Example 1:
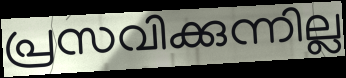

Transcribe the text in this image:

പ്രസവിക്കുന്നില്ല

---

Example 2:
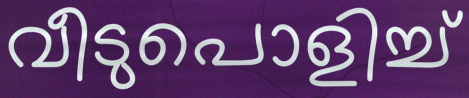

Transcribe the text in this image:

വീടുപൊളിച്ച്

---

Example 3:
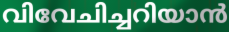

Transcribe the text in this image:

വിവേചിച്ചറിയാൻ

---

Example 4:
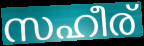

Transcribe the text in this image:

സഹീര്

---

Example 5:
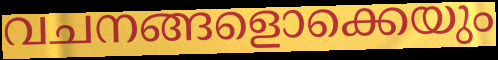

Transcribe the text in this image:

വചനങ്ങളൊക്കെയും